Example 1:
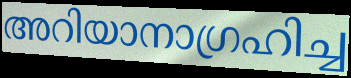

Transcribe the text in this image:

അറിയാനാഗ്രഹിച്ച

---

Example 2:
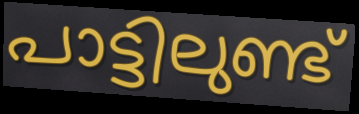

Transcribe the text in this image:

പാട്ടിലുണ്ട്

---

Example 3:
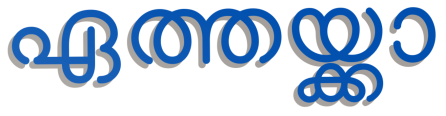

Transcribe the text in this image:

ഏത്തയ്ക്കാ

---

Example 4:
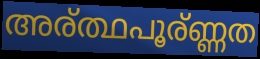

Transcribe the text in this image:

അര്ത്ഥപൂര്ണ്ണത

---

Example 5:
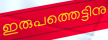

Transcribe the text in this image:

ഇരുപത്തെട്ടിനു